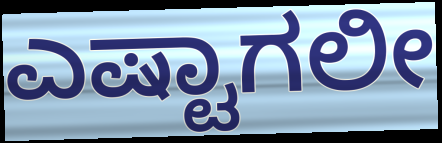
ಎಷ್ಟಾಗಲೀ